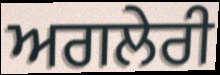
ਅਗਲੇਰੀ